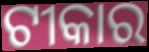
ଟୀକାର